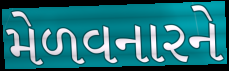
મેળવનારને